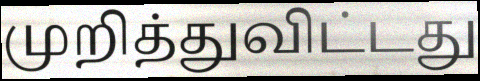
முறித்துவிட்டது